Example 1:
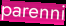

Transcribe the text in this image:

parenni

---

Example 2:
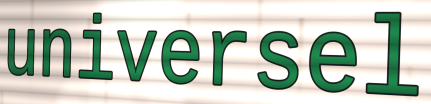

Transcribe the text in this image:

universel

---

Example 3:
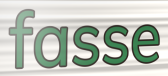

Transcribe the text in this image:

fasse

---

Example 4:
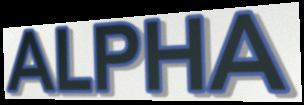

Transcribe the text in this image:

ALPHA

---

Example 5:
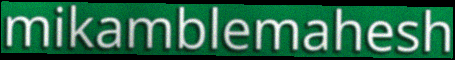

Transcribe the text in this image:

mikamblemahesh